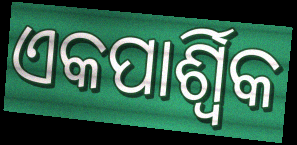
ଏକପାର୍ଶ୍ୱିକ